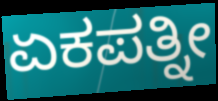
ಏಕಪತ್ನೀ